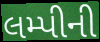
લમ્પીની